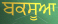
ਬਕਸੂਆ